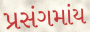
પ્રસંગમાંય